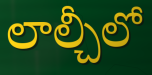
లాల్చీలో